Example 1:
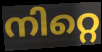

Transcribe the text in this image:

നിറ്റെ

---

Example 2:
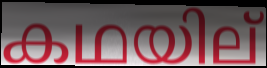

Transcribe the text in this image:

കഥയില്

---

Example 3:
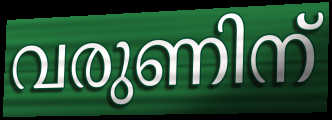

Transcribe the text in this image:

വരുണിന്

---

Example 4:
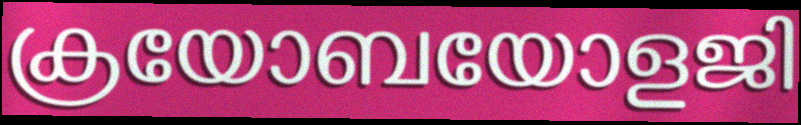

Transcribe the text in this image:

ക്രയോബയോളജി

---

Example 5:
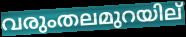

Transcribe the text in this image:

വരുംതലമുറയില്